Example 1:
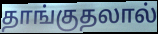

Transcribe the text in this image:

தாங்குதலால்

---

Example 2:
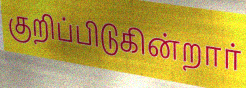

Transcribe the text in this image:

குறிப்பிடுகின்றார்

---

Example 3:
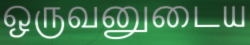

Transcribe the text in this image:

ஒருவனுடைய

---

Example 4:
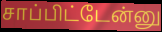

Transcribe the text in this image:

சாப்பிட்டேன்னு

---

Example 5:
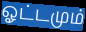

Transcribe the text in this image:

ஓட்டமும்